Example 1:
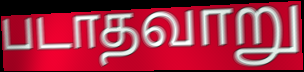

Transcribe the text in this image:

படாதவாறு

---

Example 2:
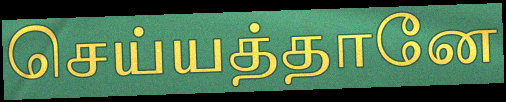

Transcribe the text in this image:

செய்யத்தானே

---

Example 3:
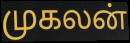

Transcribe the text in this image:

முகலன்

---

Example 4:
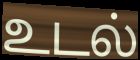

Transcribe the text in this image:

உடல்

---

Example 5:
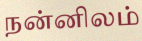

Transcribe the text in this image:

நன்னிலம்